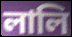
লালি